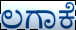
ಲಗಾಕೆ